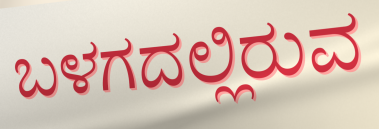
ಬಳಗದಲ್ಲಿರುವ